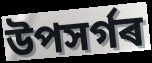
উপসৰ্গৰ